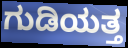
ಗುಡಿಯತ್ತ